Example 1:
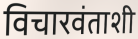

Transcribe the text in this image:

विचारवंताशी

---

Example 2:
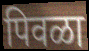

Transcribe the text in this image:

पिवळा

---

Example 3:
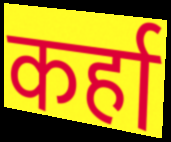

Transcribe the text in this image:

कर्हा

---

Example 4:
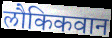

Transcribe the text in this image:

लौकिकवान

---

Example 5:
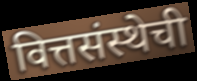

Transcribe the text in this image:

वित्तसंस्थेची